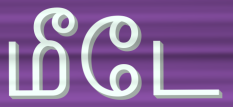
மீடே